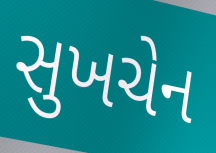
સુખચેન